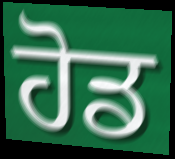
ਹੋਡ